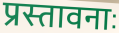
प्रस्तावनाः